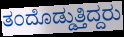
ತಂದೊಡ್ಡುತ್ತಿದ್ದರು